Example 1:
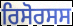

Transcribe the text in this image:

ਰਿਸੋਰਸਸ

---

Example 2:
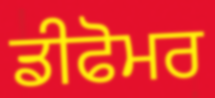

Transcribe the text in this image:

ਡੀਫੋਮਰ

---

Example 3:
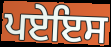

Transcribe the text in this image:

ਪਏਇਸ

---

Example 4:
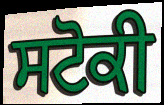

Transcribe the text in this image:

ਸਟੋਕੀ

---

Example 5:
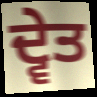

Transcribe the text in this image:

ਦ੍ਵੇਤ